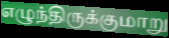
எழுந்திருக்குமாறு